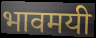
भावमयी